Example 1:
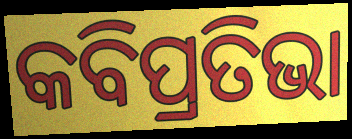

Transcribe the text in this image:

କବିପ୍ରତିଭା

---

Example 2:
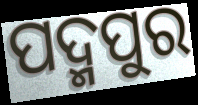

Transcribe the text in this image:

ପଦ୍ମପୁର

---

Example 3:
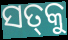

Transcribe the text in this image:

ସତ୍‌କୁ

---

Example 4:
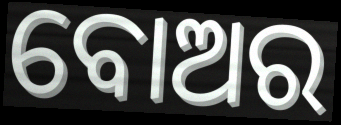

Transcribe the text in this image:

ବୋଅର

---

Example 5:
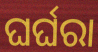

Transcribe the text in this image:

ଘର୍ଘରା